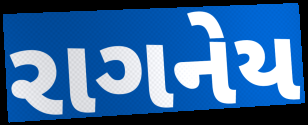
રાગનેય